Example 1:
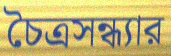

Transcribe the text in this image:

চৈত্রসন্ধ্যার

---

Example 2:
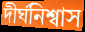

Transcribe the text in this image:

দীর্ঘনিশ্বাস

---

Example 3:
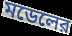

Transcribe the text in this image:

মডেলের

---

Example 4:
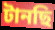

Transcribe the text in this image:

টানছি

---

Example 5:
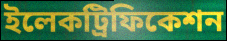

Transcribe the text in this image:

ইলেকট্রিফিকেশন